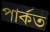
পাৰ্কত